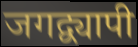
जगद्व्यापी